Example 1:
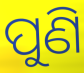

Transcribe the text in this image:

ପୁଣି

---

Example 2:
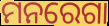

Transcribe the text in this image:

ମନରେଗା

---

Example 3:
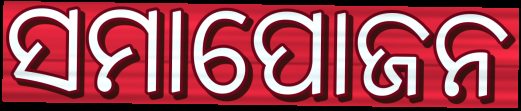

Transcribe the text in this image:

ସମାପୋଜନ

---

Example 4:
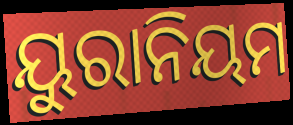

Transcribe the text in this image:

ୟୁରାନିୟମ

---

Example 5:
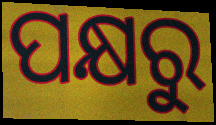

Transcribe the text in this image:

ପକ୍ଷରୁ